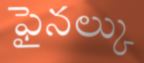
ఫైనల్కు